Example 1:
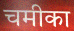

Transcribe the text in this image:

चमीका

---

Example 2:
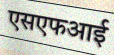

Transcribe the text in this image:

एसएफआई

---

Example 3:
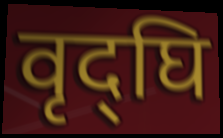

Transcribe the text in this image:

वृद्घि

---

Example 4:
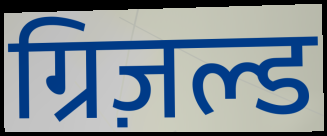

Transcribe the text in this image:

ग्रिज़ल्ड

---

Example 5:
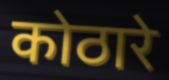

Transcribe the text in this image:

कोठारे